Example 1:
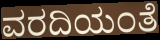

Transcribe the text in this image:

ವರದಿಯಂತೆ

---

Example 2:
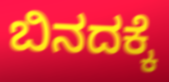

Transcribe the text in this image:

ಬಿನದಕ್ಕೆ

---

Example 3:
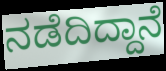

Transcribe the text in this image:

ನಡೆದಿದ್ದಾನೆ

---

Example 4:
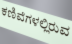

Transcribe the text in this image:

ಕಣಿವೆಗಳಲ್ಲಿರುವ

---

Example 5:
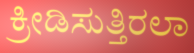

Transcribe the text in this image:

ಕ್ರೀಡಿಸುತ್ತಿರಲಾ